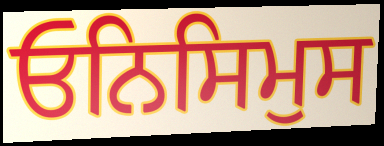
ਓਨਿਸਿਮੁਸ